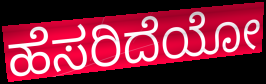
ಹೆಸರಿದೆಯೋ